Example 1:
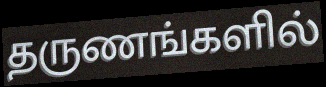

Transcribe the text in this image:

தருணங்களில்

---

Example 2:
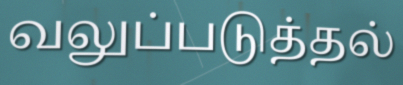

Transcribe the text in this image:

வலுப்படுத்தல்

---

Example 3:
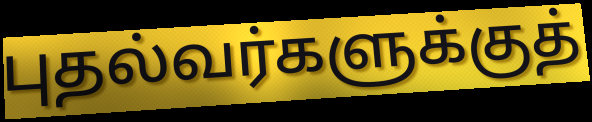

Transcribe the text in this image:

புதல்வர்களுக்குத்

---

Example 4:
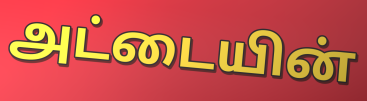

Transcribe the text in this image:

அட்டையின்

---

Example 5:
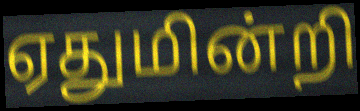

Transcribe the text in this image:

ஏதுமின்றி